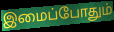
இமைப்போதும்